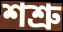
শশ্রু